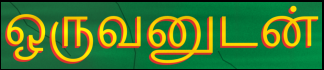
ஒருவனுடன்